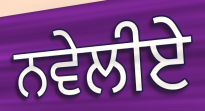
ਨਵੇਲੀਏ